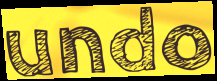
undo